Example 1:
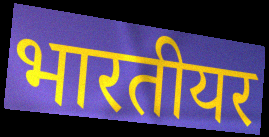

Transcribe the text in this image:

भारतीयर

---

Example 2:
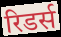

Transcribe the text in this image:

रिडर्स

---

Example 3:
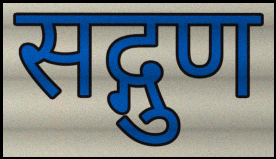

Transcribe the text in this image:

सद्गुण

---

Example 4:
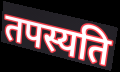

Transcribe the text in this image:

तपस्यति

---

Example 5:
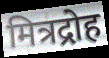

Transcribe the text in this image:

मित्रद्रोह